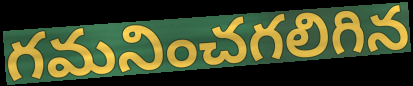
గమనించగలిగిన